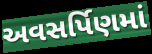
અવસર્પિણમાં